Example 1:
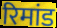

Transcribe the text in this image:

रिमांड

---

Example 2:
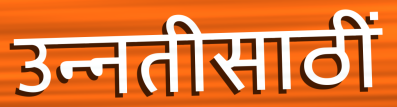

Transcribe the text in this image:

उन्नतीसाठीं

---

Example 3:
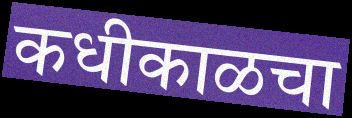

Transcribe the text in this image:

कधीकाळचा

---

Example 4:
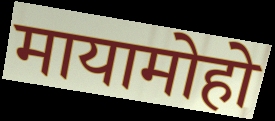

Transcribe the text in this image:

मायामोहो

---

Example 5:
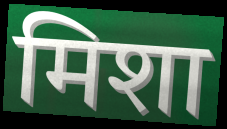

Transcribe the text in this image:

मिशा